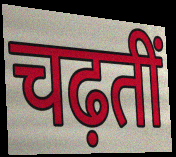
चढ़तीं